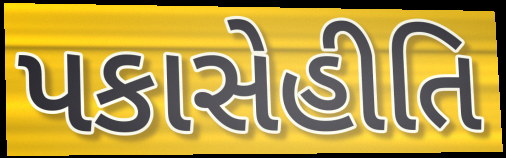
પકાસેહીતિ